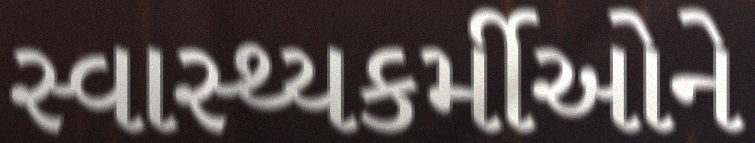
સ્વાસ્થ્યકર્મીઓને